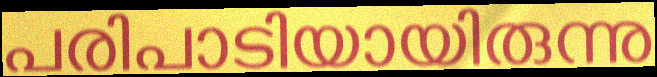
പരിപാടിയായിരുന്നു